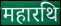
महारथि